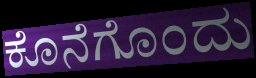
ಕೊನೆಗೊಂದು